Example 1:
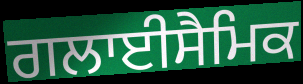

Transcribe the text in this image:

ਗਲਾਈਸੈਮਿਕ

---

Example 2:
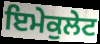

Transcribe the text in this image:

ਇਮੇਕੁਲੇਟ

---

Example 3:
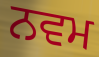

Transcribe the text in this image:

ਨਵਮ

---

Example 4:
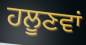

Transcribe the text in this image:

ਹਲੂਣਵਾਂ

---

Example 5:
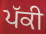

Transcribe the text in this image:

ਪੱਕੀ